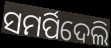
ସମର୍ପିଦେଲି